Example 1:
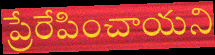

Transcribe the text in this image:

ప్రేరేపించాయని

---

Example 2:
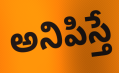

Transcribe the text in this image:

అనిపిస్తే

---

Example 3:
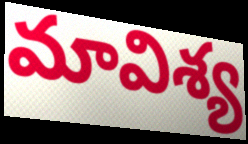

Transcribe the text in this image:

మావిశ్య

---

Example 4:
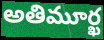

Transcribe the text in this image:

అతిమూర్ఖ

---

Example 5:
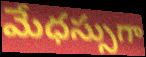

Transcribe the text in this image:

మేధస్సుగా